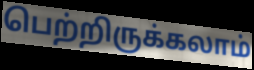
பெற்றிருக்கலாம்